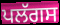
ਪਲੱਗਸ